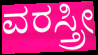
ವರಸ್ತ್ರೀ